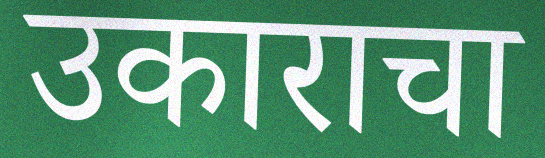
उकाराचा